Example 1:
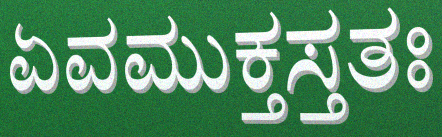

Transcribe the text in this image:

ಏವಮುಕ್ತಸ್ತತಃ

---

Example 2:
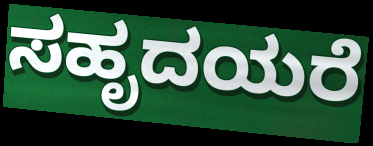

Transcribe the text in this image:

ಸಹೃದಯರೆ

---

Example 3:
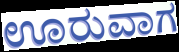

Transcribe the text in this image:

ಊರುವಾಗ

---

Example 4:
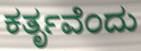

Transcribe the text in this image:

ಕರ್ತೃವೆಂದು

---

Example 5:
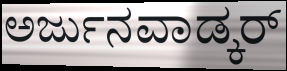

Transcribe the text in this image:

ಅರ್ಜುನವಾಡ್ಕರ್